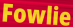
Fowlie